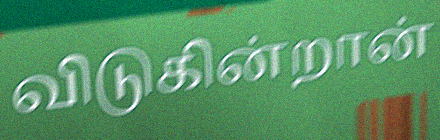
விடுகின்றான்